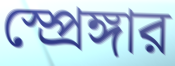
স্প্রেঙ্গার